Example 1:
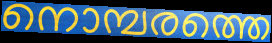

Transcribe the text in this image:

നൊമ്പരത്തെ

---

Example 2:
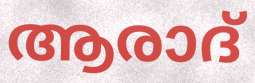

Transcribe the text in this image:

ആരാദ്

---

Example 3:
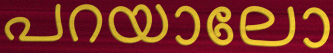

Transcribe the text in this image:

പറയാലോ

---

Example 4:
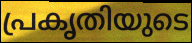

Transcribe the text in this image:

പ്രകൃതിയുടെ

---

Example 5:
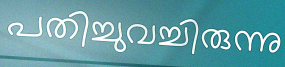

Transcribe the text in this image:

പതിച്ചുവച്ചിരുന്നു